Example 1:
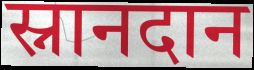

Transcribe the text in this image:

स्नानदान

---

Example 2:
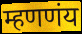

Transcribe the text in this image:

म्हणणंय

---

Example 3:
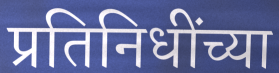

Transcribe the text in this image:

प्रतिनिधींच्या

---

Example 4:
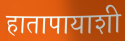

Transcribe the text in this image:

हातापायाशी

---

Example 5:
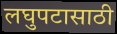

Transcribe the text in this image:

लघुपटासाठी